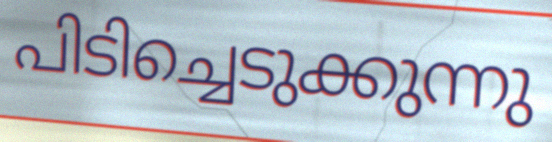
പിടിച്ചെടുക്കുന്നു